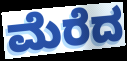
ಮೆರೆದ